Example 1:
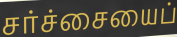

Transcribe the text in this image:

சர்ச்சையைப்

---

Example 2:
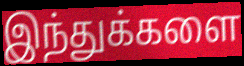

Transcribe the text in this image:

இந்துக்களை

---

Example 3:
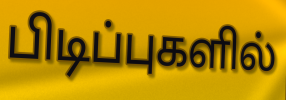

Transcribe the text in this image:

பிடிப்புகளில்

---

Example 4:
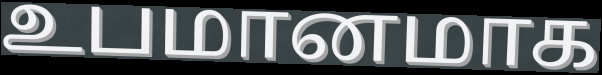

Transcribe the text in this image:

உபமானமாக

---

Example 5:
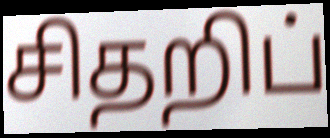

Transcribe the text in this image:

சிதறிப்